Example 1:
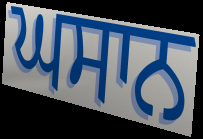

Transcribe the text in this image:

ਘਸਾਨ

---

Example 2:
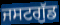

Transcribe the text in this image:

ਜਸਟਗੁੱਡ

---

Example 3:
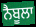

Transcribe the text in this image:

ਨੈਬੂਲਾ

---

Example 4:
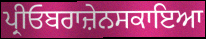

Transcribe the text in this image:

ਪ੍ਰੀਓਬਰਾਜ਼ੇਨਸਕਾਇਆ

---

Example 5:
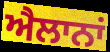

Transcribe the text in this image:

ਐਲਾਨਾਂ